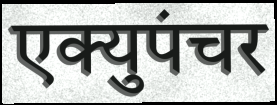
एक्युपंचर